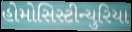
હોમોસિસ્ટીન્યુરિયા